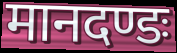
मानदण्डः